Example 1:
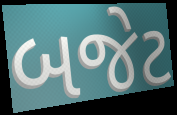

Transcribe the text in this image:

બજેટ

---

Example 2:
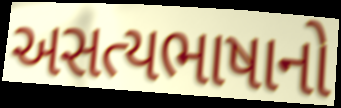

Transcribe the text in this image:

અસત્યભાષાનો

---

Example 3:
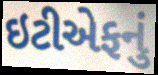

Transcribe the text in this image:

ઇટીએફનું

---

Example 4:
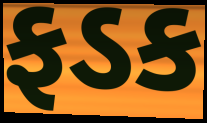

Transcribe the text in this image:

ફડક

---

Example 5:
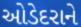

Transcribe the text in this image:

ઓડેદરાને